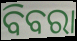
ବିବରା